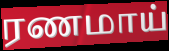
ரணமாய்